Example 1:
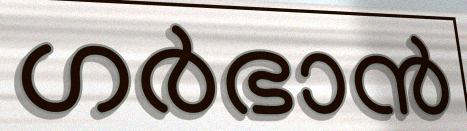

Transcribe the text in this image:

ഗർഭാൻ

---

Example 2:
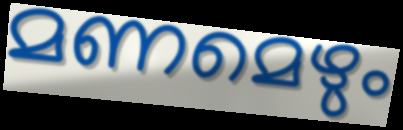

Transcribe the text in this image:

മണമെഴും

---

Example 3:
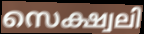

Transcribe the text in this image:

സെക്ഷ്വലി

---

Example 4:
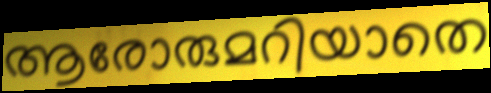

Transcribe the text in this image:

ആരോരുമറിയാതെ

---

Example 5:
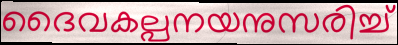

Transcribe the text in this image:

ദൈവകല്പനയനുസരിച്ച്